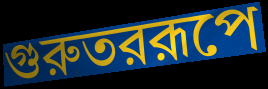
গুরুতররূপে